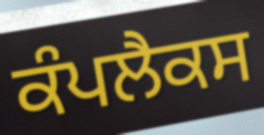
ਕੰਪਲੈਕਸ